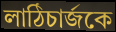
লাঠিচার্জকে